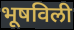
भूषविली